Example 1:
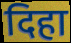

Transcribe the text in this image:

दिहा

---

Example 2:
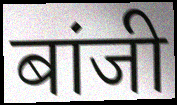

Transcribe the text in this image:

बांजी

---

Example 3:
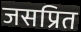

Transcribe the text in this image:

जसप्रित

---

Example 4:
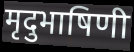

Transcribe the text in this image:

मृदुभाषिणी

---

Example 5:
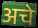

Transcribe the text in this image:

अचे